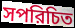
সপরিচিত